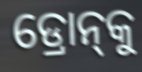
ଡ୍ରୋନ୍‌କୁ